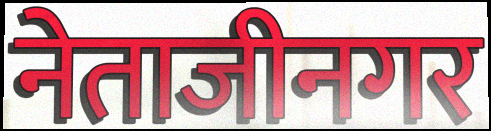
नेताजीनगर